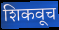
शिकवूच